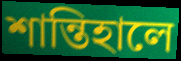
শান্তিহালে